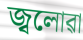
জ্বলোৱা